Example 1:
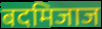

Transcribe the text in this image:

बदमिजाज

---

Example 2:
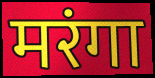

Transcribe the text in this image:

मरंगा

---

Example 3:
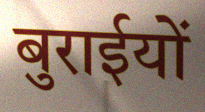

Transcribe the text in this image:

बुराईयों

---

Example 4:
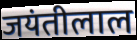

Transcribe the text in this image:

जयंतीलाल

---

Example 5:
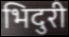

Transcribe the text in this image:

भिदुरी